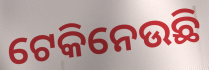
ଟେକିନେଉଛି